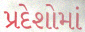
પ્રદેશોમાં